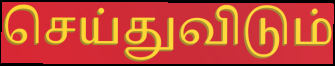
செய்துவிடும்